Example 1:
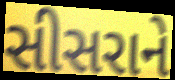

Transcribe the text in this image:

સીસરાને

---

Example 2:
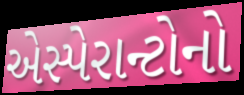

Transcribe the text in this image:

એસ્પેરાન્ટોનો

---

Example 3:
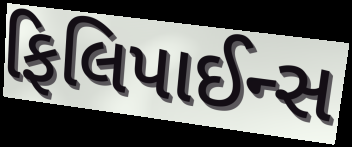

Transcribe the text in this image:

ફિલિપાઈન્સ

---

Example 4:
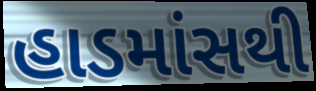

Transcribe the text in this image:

હાડમાંસથી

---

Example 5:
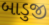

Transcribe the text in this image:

બાડુજી